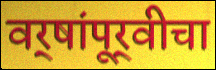
वर्षांपूर्वीचा